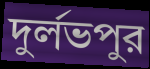
দুর্লভপুর